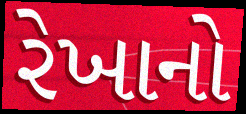
રેખાનો